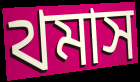
থমাস